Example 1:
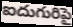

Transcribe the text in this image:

ఐదుగురిపై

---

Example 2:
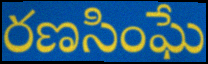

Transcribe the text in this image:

రణసింఘే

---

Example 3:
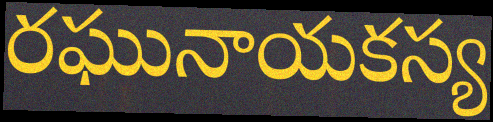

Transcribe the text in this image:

రఘునాయకస్య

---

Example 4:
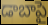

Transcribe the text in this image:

డాబాపై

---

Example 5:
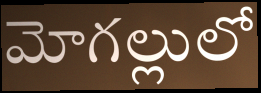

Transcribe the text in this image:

మోగల్లులో